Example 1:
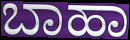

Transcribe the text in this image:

ಬಾಹಾ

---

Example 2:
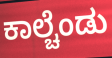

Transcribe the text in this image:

ಕಾಲ್ಚೆಂಡು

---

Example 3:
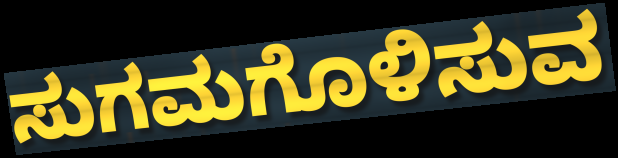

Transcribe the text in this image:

ಸುಗಮಗೊಳಿಸುವ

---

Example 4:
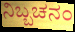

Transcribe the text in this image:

ನಿಬ್ಬಚನಂ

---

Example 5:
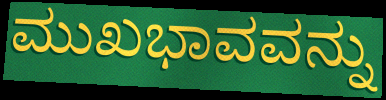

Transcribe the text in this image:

ಮುಖಭಾವವನ್ನು